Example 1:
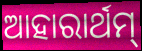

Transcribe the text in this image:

ଆହାରାର୍ଥମ୍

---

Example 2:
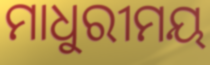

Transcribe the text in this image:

ମାଧୁରୀମୟ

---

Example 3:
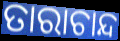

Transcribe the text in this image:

ତାରାଚାନ୍ଦ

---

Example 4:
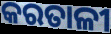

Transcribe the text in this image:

କରତାଳୀ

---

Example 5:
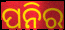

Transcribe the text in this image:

ପନିର